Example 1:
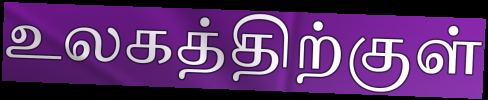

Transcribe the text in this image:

உலகத்திற்குள்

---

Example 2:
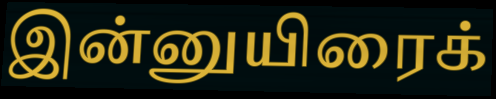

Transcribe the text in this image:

இன்னுயிரைக்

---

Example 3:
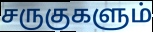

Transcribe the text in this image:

சருகுகளும்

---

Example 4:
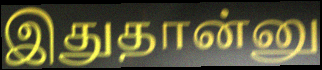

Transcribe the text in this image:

இதுதான்னு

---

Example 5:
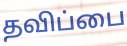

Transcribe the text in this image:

தவிப்பை